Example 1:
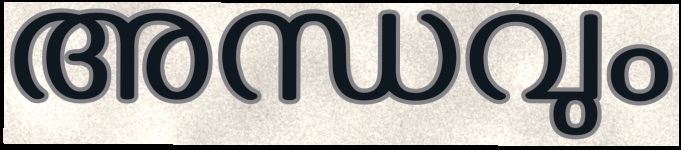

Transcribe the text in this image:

അന്ധവും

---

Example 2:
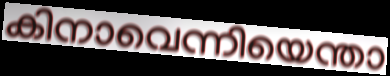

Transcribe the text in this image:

കിനാവെന്നിയെന്താ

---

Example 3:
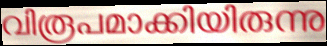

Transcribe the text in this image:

വിരൂപമാക്കിയിരുന്നു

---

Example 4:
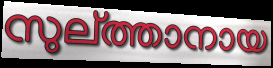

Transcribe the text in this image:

സുല്ത്താനായ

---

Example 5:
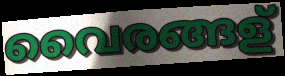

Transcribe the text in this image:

വൈരങ്ങള്